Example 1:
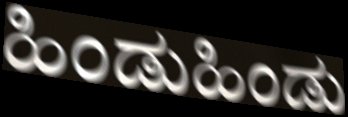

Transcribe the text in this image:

ಹಿಂಡುಹಿಂಡು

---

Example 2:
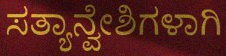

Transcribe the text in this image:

ಸತ್ಯಾನ್ವೇಶಿಗಳಾಗಿ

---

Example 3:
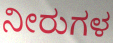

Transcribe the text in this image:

ನೀರುಗಳ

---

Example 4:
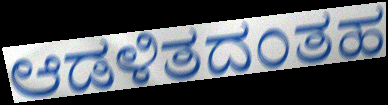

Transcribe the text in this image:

ಆಡಳಿತದಂತಹ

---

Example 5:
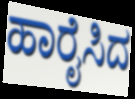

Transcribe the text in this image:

ಹಾರೈಸಿದ